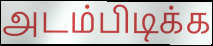
அடம்பிடிக்க